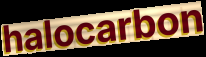
halocarbon